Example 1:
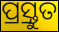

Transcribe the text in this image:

ପ୍ର୍ରସ୍ତୁତ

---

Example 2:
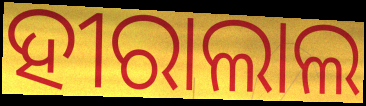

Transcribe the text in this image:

ହୀରାଲାଲ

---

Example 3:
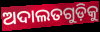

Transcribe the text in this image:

ଅଦାଲତଗୁଡ଼ିକୁ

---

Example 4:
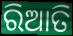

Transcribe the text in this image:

ରିଆତି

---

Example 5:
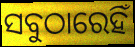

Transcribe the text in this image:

ସବୁଠାରେହିଁ